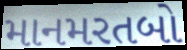
માનમરતબો